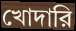
খোদারি